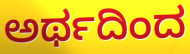
ಅರ್ಥದಿಂದ